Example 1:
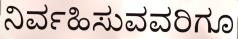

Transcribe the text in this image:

ನಿರ್ವಹಿಸುವವರಿಗೂ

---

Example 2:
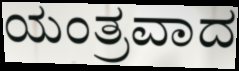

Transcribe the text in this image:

ಯಂತ್ರವಾದ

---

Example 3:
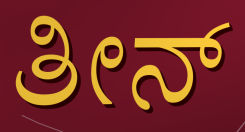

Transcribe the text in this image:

ತೀನ್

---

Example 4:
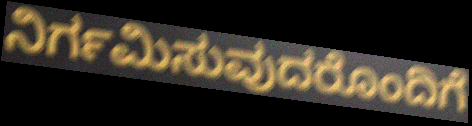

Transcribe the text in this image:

ನಿರ್ಗಮಿಸುವುದರೊಂದಿಗೆ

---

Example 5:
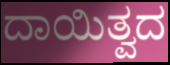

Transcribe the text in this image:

ದಾಯಿತ್ವದ